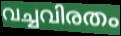
വച്ചവിരതം